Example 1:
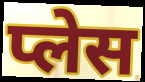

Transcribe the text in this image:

प्लेस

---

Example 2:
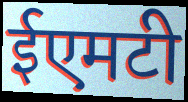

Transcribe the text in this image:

ईएमटी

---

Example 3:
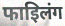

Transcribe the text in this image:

फाइिलंग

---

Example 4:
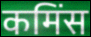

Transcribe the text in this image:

कमिंस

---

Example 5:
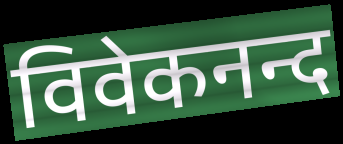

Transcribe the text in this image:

विवेकनन्द